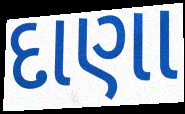
દાણા